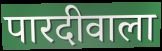
पारदीवाला